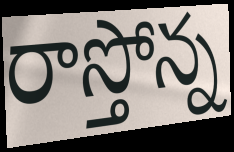
రాస్తోన్న